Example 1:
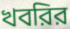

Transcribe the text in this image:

খবরির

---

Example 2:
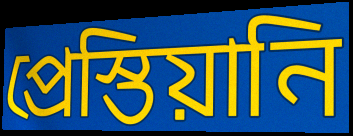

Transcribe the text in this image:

প্রেস্তিয়ানি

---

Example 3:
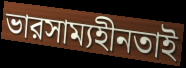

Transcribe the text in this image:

ভারসাম্যহীনতাই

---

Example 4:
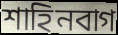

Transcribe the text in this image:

শাহিনবাগ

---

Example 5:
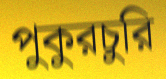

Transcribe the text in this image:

পুকুরচুরি